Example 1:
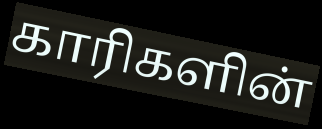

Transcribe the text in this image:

காரிகளின்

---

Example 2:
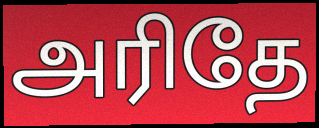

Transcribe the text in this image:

அரிதே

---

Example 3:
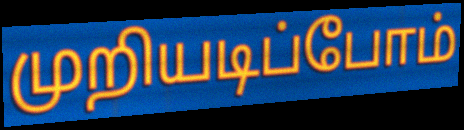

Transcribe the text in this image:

முறியடிப்போம்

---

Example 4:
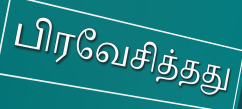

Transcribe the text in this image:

பிரவேசித்தது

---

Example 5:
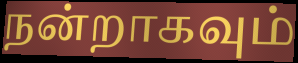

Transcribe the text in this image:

நன்றாகவும்